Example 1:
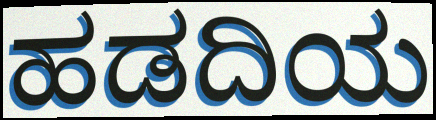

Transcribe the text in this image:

ಹಡದಿಯ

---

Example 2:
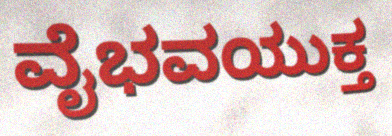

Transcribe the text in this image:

ವೈಭವಯುಕ್ತ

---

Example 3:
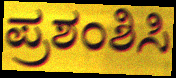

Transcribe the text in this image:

ಪ್ರಶಂಶಿಸಿ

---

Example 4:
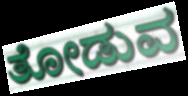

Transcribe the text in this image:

ತೋಡುವ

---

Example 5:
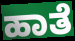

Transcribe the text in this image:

ಹಾತೆ